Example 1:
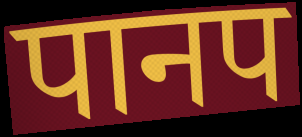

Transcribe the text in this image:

पानप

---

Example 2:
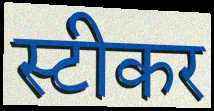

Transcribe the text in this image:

स्टीकर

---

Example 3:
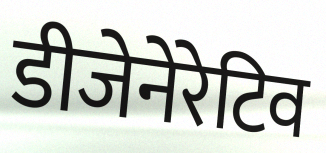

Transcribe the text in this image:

डीजेनेरेटिव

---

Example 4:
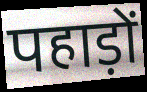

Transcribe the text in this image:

पहाड़ों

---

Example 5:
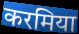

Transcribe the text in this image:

करमिया